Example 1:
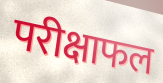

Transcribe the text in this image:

परीक्षाफल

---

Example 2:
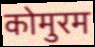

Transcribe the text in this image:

कोमुरम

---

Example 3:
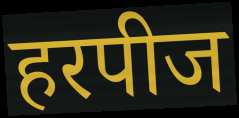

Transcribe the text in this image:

हरपीज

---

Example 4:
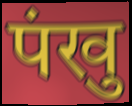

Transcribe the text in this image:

पंखु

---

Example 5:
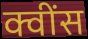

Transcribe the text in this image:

क्वींस